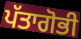
ਪੱਤਾਗੋਭੀ